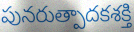
పునరుత్పాదకశక్తి